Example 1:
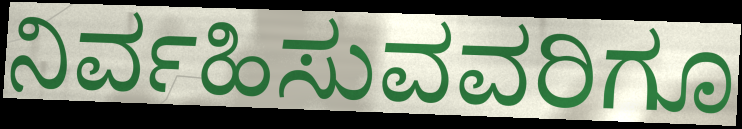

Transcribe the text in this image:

ನಿರ್ವಹಿಸುವವರಿಗೂ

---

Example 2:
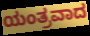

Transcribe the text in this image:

ಯಂತ್ರವಾದ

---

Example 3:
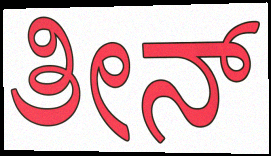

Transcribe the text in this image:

ತೀನ್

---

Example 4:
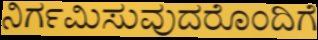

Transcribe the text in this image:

ನಿರ್ಗಮಿಸುವುದರೊಂದಿಗೆ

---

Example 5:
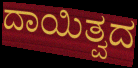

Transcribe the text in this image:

ದಾಯಿತ್ವದ